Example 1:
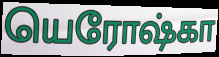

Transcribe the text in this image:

யெரோஷ்கா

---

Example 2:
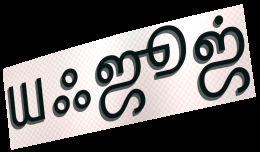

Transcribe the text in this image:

யஃஜூஜ்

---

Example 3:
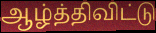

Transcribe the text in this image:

ஆழ்த்திவிட்டு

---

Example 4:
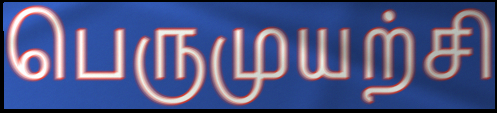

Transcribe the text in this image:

பெருமுயற்சி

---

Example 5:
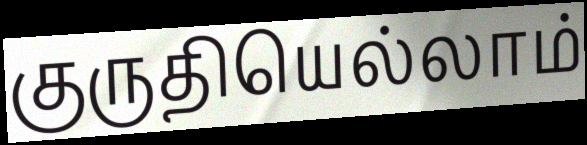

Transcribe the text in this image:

குருதியெல்லாம்